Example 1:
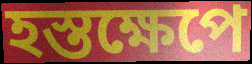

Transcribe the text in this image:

হস্তক্ষেপে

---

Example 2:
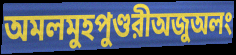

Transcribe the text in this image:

অমলমুহপুণ্ডরীঅজুঅলং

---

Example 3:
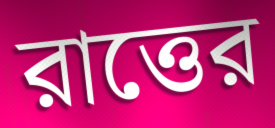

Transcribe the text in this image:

রাত্তের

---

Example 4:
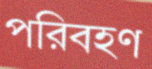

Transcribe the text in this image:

পরিবহণ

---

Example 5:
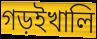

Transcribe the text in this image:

গড়ইখালি